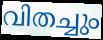
വിതച്ചും